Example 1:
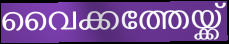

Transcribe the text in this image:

വൈക്കത്തേയ്ക്ക്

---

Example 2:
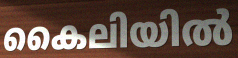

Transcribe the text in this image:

കൈലിയിൽ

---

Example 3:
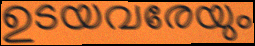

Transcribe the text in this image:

ഉടയവരേയും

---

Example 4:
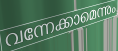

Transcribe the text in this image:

വന്നേക്കാമെന്നും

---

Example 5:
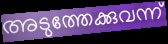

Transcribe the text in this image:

അടുത്തേക്കുവന്ന്